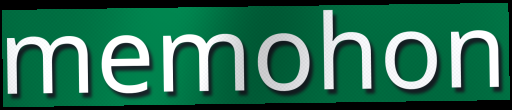
memohon